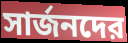
সার্জনদের